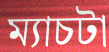
ম্যাচটা